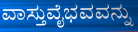
ವಾಸ್ತುವೈಭವವನ್ನು